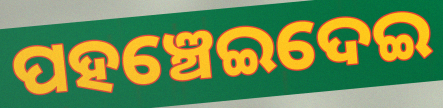
ପହଞ୍ଚେଇଦେଇ